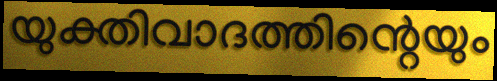
യുക്തിവാദത്തിന്റെയും